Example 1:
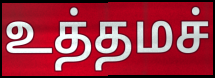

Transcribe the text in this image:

உத்தமச்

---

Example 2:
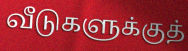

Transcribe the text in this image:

வீடுகளுக்குத்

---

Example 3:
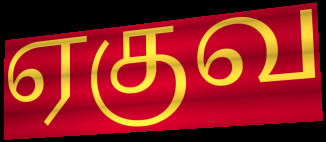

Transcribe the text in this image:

ஏகுவ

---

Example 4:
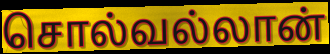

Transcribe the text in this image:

சொல்வல்லான்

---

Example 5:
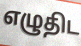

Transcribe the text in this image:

எழுதிட